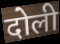
दोली